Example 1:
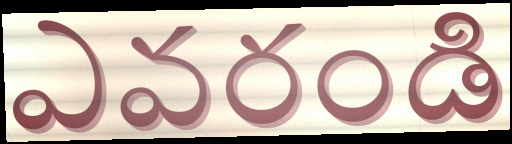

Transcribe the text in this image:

ఎవరండి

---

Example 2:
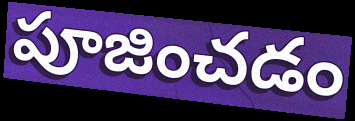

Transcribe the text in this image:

పూజించడం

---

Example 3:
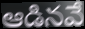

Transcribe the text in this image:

ఆడినవే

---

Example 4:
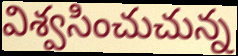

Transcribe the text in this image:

విశ్వసించుచున్న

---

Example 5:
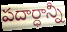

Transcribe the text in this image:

పదార్ధాన్నీ